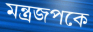
মন্ত্রজপকে